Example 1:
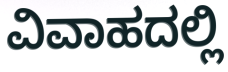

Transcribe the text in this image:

ವಿವಾಹದಲ್ಲಿ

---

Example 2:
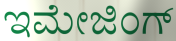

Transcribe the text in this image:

ಇಮೇಜಿಂಗ್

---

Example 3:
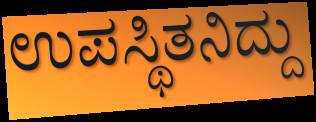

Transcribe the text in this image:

ಉಪಸ್ಥಿತನಿದ್ದು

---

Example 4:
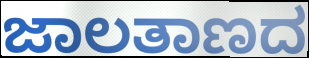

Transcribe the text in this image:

ಜಾಲತಾಣದ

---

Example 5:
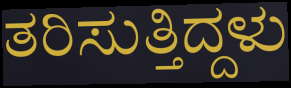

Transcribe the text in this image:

ತರಿಸುತ್ತಿದ್ದಳು